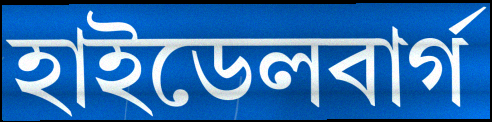
হাইডেলবার্গ